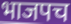
भाजपच